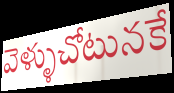
వెళ్ళుచోటునకే